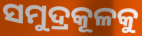
ସମୁଦ୍ରକୂଳକୁ